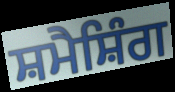
ਸ਼ਮੈਸ਼ਿੰਗ